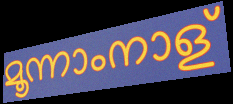
മൂന്നാംനാള്